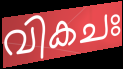
വികചഃ